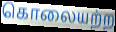
கொலையற்ற